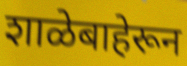
शाळेबाहेरून